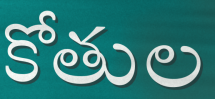
కోతుల